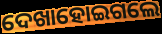
ଦେଖାହୋଇଗଲେ